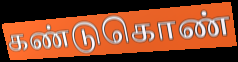
கண்டுகொண்